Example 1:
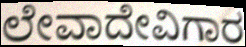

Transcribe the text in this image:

ಲೇವಾದೇವಿಗಾರ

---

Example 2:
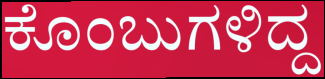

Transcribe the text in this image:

ಕೊಂಬುಗಳಿದ್ದ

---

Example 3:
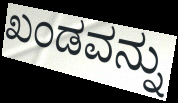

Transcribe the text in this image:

ಖಂಡವನ್ನು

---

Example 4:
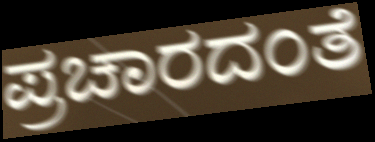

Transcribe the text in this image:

ಪ್ರಚಾರದಂತೆ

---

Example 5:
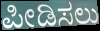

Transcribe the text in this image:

ಪೀಡಿಸಲು